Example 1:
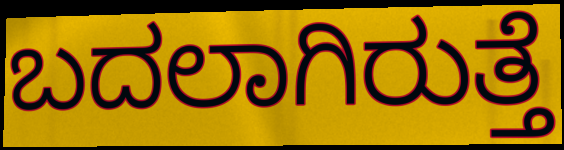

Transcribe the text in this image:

ಬದಲಾಗಿರುತ್ತೆ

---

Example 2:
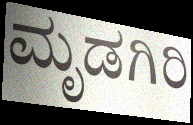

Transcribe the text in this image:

ಮೃಡಗಿರಿ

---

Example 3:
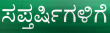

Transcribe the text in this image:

ಸಪ್ತರ್ಷಿಗಳಿಗೆ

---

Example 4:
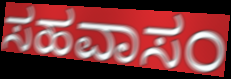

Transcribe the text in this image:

ಸಹವಾಸಂ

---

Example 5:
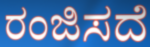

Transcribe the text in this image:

ರಂಜಿಸದೆ